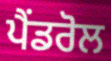
ਪੈਂਡਰੋਲ